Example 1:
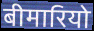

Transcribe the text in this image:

बीमारियो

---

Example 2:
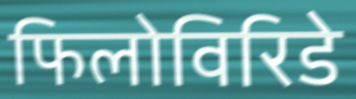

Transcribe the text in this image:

फिलोविरिडे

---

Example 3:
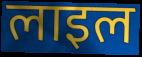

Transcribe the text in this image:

लाइल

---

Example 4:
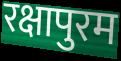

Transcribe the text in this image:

रक्षापुरम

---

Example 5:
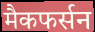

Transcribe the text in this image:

मैकफर्सन